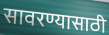
सावरण्यासाठी